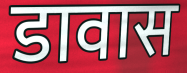
डावास